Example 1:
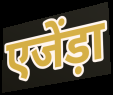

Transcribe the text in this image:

एजेंड़ा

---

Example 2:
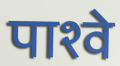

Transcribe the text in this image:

पाश्वे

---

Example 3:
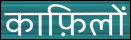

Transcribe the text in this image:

काफ़िलों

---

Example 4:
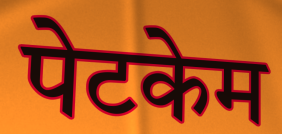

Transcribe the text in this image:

पेटकेम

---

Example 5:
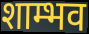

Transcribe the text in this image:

शाम्भव